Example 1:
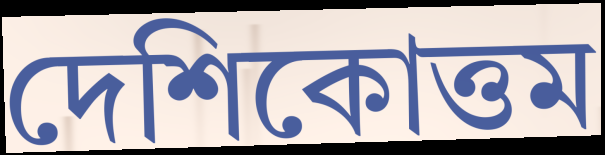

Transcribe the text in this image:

দেশিকোত্তম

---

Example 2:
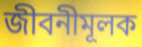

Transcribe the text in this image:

জীবনীমূলক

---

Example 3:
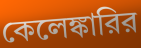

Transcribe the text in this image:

কেলেঙ্কারির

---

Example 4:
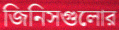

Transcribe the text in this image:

জিনিসগুলোর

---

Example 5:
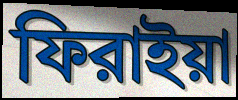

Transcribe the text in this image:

ফিরাইয়া